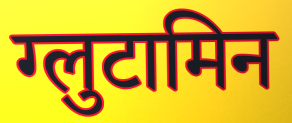
ग्लुटामिन